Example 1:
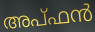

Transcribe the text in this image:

അപ്ഫൻ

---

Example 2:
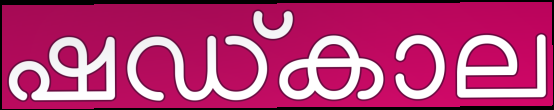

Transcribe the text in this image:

ഷഡ്കാല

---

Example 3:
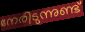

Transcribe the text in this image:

നേരിടുന്നുണ്ട്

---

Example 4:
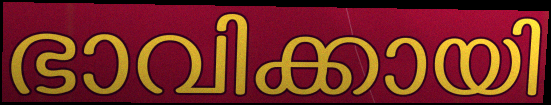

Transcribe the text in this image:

ഭാവിക്കായി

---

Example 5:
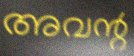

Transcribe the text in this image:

അവന്റ